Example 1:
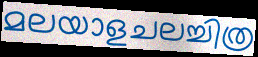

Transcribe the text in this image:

മലയാളചലച്ചിത്ര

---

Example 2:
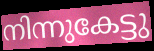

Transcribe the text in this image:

നിന്നുകേട്ടു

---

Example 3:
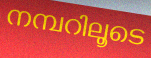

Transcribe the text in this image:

നമ്പറിലൂടെ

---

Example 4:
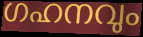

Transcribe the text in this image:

ഗഹനവും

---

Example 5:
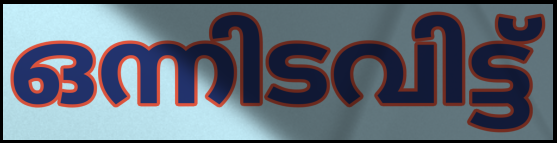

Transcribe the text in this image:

ഒന്നിടവിട്ട്